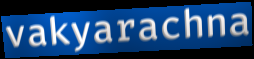
vakyarachna